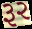
રૂર